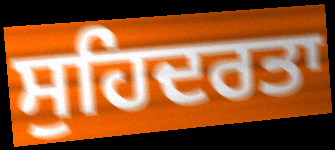
ਸੁਹਿਦਰਤਾ